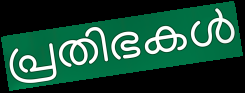
പ്രതിഭകൾ